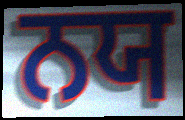
ਨਯ